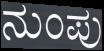
ನುಂಪು